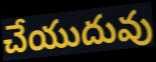
చేయుదువు